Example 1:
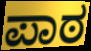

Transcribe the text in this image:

ಪಾಠ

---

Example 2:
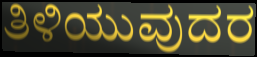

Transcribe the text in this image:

ತಿಳಿಯುವುದರ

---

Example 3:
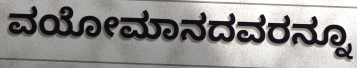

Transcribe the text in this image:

ವಯೋಮಾನದವರನ್ನೂ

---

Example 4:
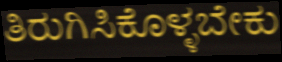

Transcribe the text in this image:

ತಿರುಗಿಸಿಕೊಳ್ಳಬೇಕು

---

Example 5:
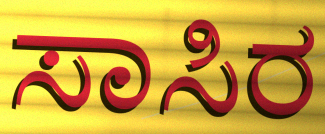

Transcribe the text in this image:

ಸಾಸಿರ